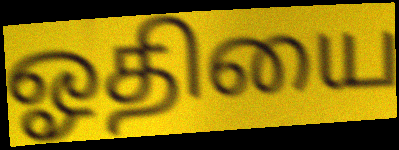
ஓதியை